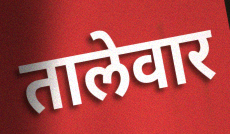
तालेवार